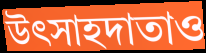
উৎসাহদাতাও